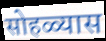
सोहळ्यास